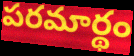
పరమార్థం